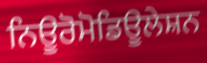
ਨਿਊਰੋਮੋਡਿਊਲੇਸ਼ਨ